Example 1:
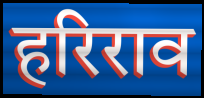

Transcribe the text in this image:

हरिराव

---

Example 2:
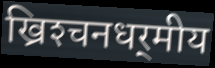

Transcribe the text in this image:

ख्रिश्चनधर्मीय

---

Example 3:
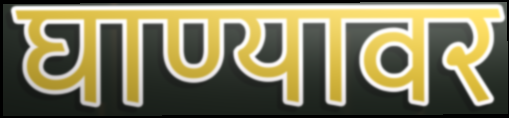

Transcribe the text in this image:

घाण्यावर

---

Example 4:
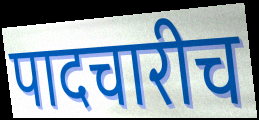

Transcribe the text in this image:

पादचारीच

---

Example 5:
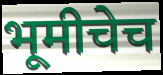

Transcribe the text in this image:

भूमीचेच